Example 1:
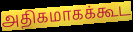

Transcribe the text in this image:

அதிகமாகக்கூட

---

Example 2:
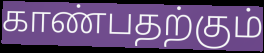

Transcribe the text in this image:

காண்பதற்கும்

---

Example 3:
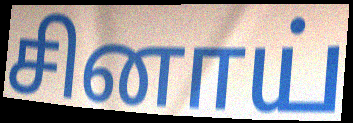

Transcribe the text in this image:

சினாய்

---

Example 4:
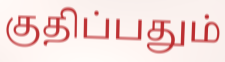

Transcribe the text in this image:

குதிப்பதும்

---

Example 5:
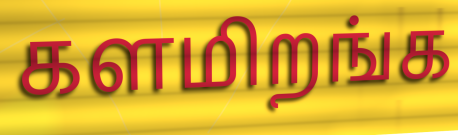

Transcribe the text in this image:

களமிறங்க